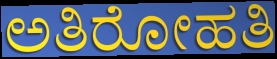
ಅತಿರೋಹತಿ